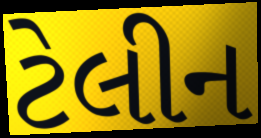
ટેલીન